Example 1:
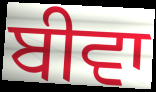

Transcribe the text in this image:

ਬੀਵਾ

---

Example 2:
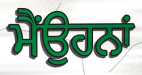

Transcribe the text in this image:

ਮੈਂਉਹਨਾਂ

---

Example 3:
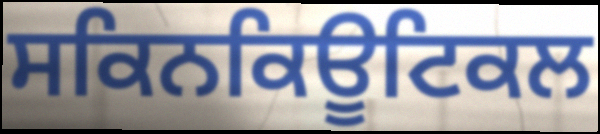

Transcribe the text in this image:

ਸਕਿਨਕਿਊਟਿਕਲ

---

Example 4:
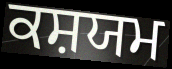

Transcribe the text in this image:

ਕਸ਼ਯਮ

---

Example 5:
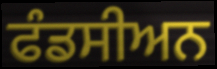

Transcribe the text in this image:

ਫੰਡਸੀਅਨ